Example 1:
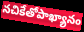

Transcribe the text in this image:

నచికేతోపాఖ్యానం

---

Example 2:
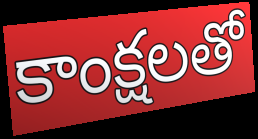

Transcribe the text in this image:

కాంక్షలతో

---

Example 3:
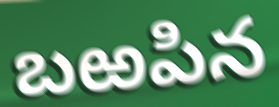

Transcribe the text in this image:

బఱపిన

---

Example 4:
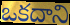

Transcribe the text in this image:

ఒకదాని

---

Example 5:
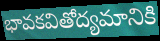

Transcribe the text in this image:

భావకవితోద్యమానికి